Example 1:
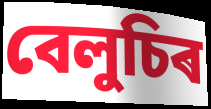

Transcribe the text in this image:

বেলুচিৰ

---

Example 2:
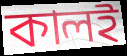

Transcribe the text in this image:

কালই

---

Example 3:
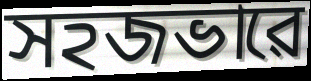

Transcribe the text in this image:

সহজভাৱে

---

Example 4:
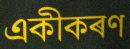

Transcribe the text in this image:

একীকৰণ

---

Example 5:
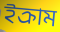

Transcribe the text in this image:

ইক্ৰাম